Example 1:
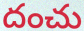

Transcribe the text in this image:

దంచు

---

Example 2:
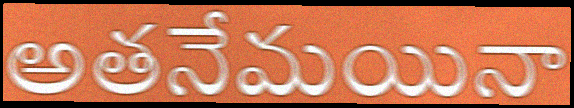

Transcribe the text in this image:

అతనేమయినా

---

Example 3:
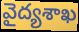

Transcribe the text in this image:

వైద్యశాఖ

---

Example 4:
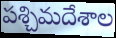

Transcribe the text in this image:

పశ్చిమదేశాల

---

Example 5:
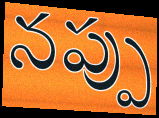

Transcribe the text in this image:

నప్పు